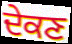
ਦੇਕਣ